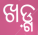
ଖଡ଼୍ଗ